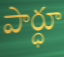
పార్ధూ